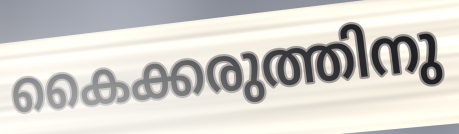
കൈക്കരുത്തിനു